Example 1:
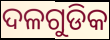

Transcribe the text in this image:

ଦଳଗୁଡିକ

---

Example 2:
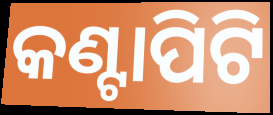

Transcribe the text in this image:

କଣ୍ଟାପିଟି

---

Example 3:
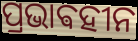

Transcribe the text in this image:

ପ୍ରଭାଵହୀନ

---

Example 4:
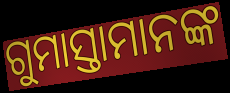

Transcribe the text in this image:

ଗୁମାସ୍ତାମାନଙ୍କ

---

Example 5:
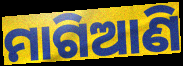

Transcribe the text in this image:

ମାଗିଆଣି